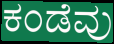
ಕಂಡೆವು